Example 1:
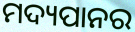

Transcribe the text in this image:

ମଦ୍ୟପାନର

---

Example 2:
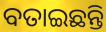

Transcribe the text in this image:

ବତାଇଛନ୍ତି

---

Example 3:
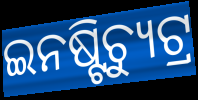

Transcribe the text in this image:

ଇନଷ୍ଟିଚ୍ୟୁଟ୍ର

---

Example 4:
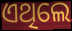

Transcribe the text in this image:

ଏଥିଲେ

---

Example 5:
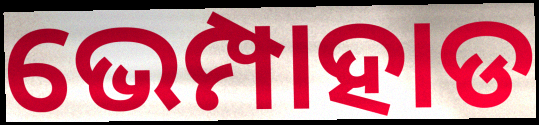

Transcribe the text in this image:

ଭେମ୍ପାହାଡ